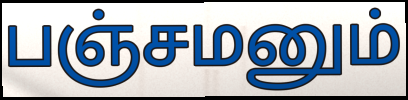
பஞ்சமனும்